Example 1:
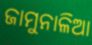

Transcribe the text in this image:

ଜାମୁନାଳିଆ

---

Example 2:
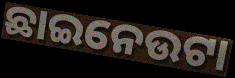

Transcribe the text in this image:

ଛାଇନେଉଟା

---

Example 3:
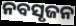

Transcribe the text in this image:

ନବସୃଜନ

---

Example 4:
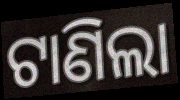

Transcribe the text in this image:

ଟାଣିଲା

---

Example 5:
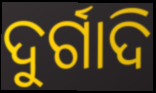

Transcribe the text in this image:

ଦୁର୍ଗାଦି